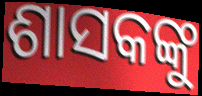
ଶାସକଙ୍କୁ